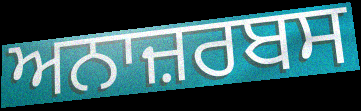
ਅਨਾਜ਼ਰਬਸ